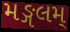
મઙ્ગલમ્